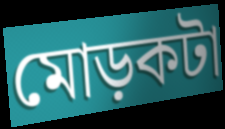
মোড়কটা